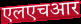
एलएचआर